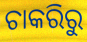
ଚାକରିରୁ